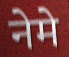
नेमे